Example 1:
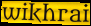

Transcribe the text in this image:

wikhrai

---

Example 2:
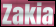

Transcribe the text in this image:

Zakia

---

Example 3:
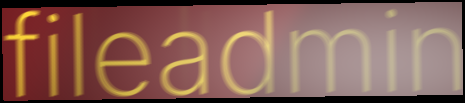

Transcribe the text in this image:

fileadmin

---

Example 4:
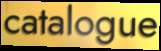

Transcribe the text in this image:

catalogue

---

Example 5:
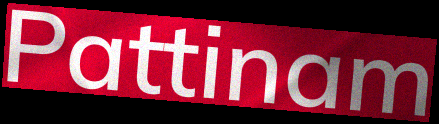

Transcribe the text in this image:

Pattinam